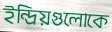
ইন্দ্রিয়গুলোকে